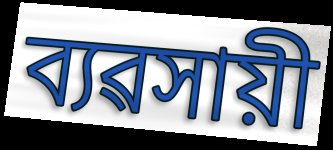
ব্যৱসায়ী